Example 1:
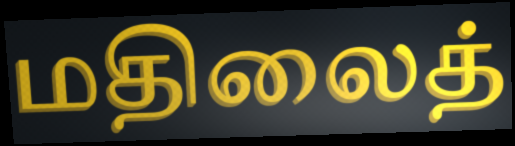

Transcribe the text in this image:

மதிலைத்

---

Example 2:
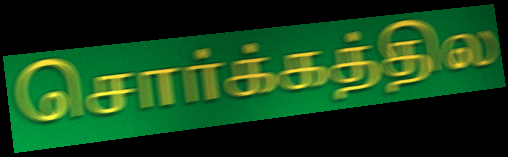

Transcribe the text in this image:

சொர்க்கத்தில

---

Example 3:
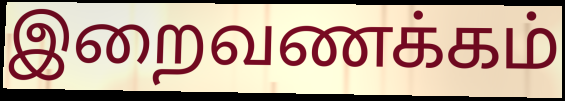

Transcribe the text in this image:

இறைவணக்கம்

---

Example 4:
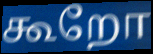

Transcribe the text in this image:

கூறோ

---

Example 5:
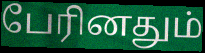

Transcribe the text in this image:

பேரினதும்